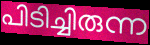
പിടിച്ചിരുന്ന